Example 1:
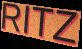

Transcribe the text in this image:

RITZ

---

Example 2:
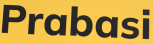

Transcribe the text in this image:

Prabasi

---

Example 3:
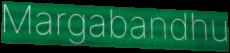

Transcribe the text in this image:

Margabandhu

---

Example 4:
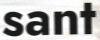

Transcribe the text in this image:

sant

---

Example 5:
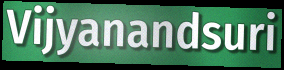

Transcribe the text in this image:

Vijyanandsuri